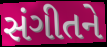
સંગીતને